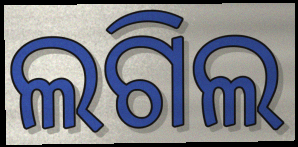
ଲଗିଲ